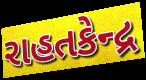
રાહતકેન્દ્ર